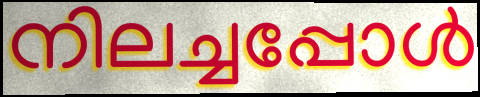
നിലച്ചപ്പോൾ